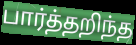
பார்த்தறிந்த